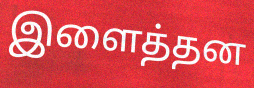
இளைத்தன